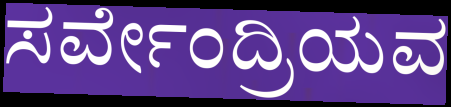
ಸರ್ವೇಂದ್ರಿಯವ